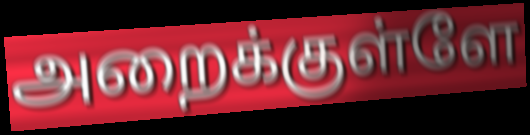
அறைக்குள்ளே